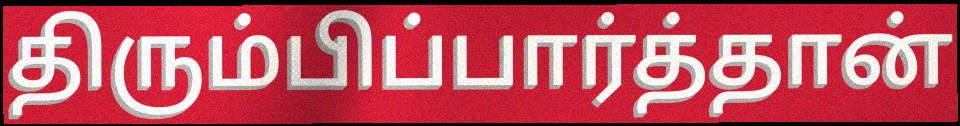
திரும்பிப்பார்த்தான்